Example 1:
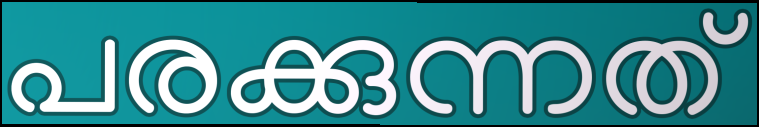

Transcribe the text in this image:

പരക്കുന്നത്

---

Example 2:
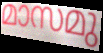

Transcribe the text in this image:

മാസമു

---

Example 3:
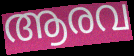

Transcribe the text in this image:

ആരവ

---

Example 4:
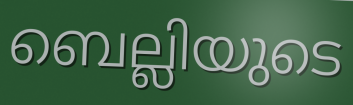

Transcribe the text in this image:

ബെല്ലിയുടെ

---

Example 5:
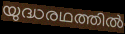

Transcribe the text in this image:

യുദ്ധരഥത്തിൽ